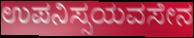
ಉಪನಿಸ್ಸಯವಸೇನ